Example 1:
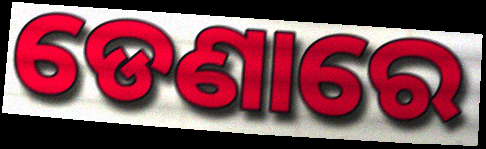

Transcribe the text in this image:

ଡେଣାରେ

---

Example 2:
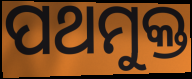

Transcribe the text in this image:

ପଥମୁକ୍ତ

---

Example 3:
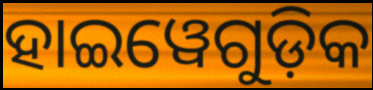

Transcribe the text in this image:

ହାଇୱେଗୁଡ଼ିକ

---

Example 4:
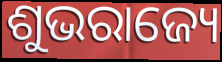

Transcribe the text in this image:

ଶୁଭରାଜ୍ୟେ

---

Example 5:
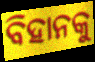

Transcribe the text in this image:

ବିହାନକୁ